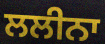
ਲਲੀਨਾ